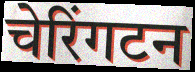
चेरिंगटन